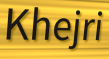
Khejri